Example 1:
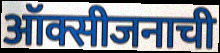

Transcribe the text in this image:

ऑक्सीजनाची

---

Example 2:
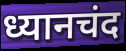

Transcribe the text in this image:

ध्यानचंद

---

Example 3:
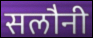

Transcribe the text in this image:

सलौनी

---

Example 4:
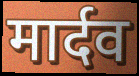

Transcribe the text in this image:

मार्दव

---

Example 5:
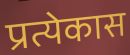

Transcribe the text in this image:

प्रत्येकास